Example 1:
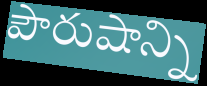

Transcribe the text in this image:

పౌరుషాన్ని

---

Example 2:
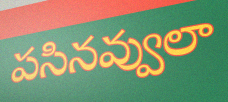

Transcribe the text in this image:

పసినవ్వులా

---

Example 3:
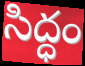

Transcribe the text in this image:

సిద్ధం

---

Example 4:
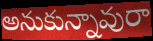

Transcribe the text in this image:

అనుకున్నావురా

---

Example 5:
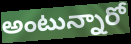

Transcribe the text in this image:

అంటున్నారో